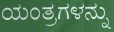
ಯಂತ್ರಗಳನ್ನು